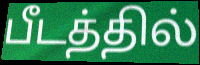
பீடத்தில்